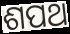
ଶପଥ